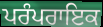
ਪਰੰਪਰਾਇਕ